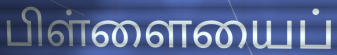
பிள்ளையைப்